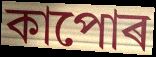
কাপোৰ